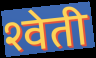
श्वेती